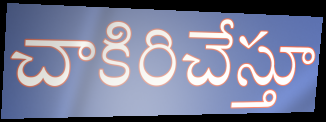
చాకిరిచేస్తూ